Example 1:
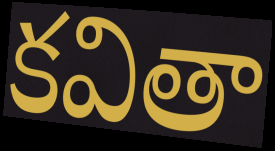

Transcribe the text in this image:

కవితా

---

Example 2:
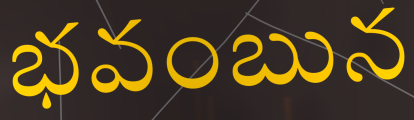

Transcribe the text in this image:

భవంబున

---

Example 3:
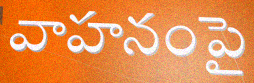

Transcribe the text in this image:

వాహనంపై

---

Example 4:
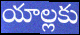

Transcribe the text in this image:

యాల్లకు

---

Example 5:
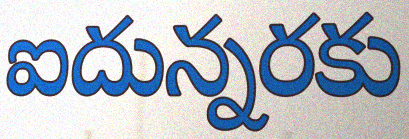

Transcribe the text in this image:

ఐదున్నరకు